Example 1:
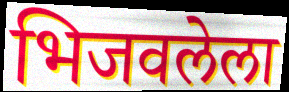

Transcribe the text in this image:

भिजवलेला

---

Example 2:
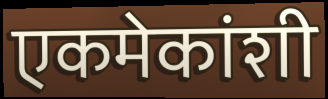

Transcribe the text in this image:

एकमेकांशी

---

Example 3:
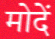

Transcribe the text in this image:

मोदें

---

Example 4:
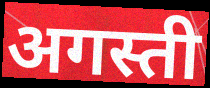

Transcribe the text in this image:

अगस्ती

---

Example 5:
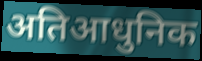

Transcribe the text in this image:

अतिआधुनिक